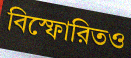
বিস্ফোরিতও